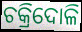
ଚକ୍ରିଦୋଳି